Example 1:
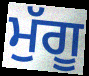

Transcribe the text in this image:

ਮੁੱਗੂ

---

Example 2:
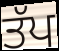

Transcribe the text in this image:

ਤੱਪ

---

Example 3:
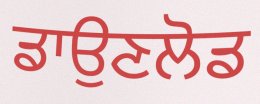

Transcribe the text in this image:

ਡਾਉਣਲੋਡ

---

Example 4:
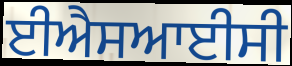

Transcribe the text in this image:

ਈਐਸਆਈਸੀ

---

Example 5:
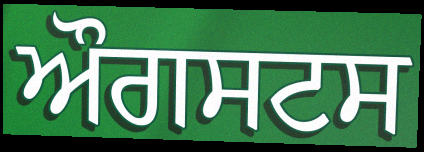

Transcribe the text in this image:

ਔਗਸਟਸ